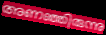
അണഞ്ഞിരുന്നു